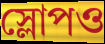
স্লোপও